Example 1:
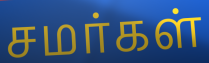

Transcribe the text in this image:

சமர்கள்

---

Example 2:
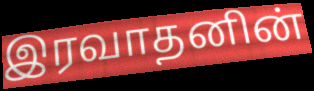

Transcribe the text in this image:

இரவாதனின்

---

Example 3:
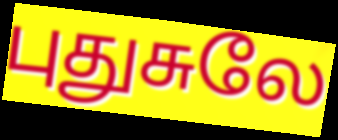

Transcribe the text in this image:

புதுசுலே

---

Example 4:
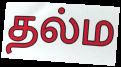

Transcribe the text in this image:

தல்ம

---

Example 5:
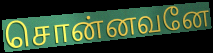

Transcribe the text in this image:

சொன்னவனே